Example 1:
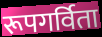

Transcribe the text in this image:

रूपगर्विता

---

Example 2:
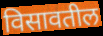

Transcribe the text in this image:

विसावतील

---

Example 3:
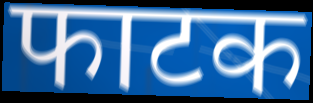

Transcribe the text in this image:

फाटक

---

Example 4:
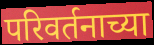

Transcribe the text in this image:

परिवर्तनाच्या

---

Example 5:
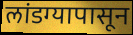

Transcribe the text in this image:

लांडग्यापासून